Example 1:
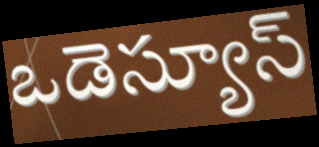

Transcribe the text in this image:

ఒడెస్యూస్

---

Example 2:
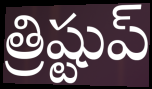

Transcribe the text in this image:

త్రిష్టుప్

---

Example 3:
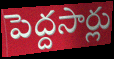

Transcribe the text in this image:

పెద్దసార్లు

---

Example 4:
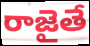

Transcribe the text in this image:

రాజైతే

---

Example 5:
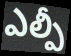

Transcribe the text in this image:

ఎల్పీ